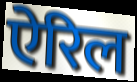
ऐरिल